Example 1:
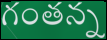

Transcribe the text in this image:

గంతన్న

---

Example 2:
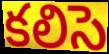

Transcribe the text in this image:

కలిసె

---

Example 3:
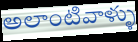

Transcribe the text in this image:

అలాంటివాళ్ళు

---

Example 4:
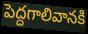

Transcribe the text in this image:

పెద్దగాలివానకి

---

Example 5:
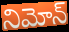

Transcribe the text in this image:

నిమోన్